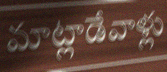
మాట్లాడేవాళ్లు